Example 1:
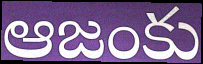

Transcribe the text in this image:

ఆజంకు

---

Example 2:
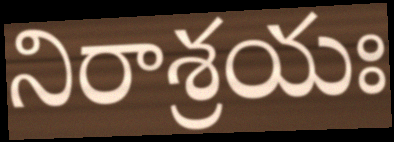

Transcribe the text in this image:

నిరాశ్రయః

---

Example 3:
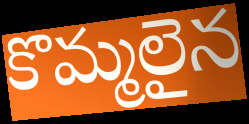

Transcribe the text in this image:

కొమ్మలైన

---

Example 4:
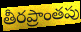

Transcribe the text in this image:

తీరప్రాంతపు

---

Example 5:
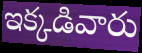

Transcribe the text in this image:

ఇక్కడివారు